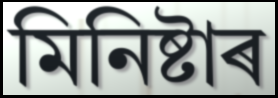
মিনিষ্টাৰ